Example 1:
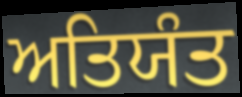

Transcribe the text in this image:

ਅਤਿਯੰਤ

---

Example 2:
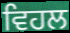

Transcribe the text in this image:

ਵਿਹਲ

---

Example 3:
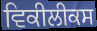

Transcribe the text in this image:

ਵਿਕੀਲੀਕਸ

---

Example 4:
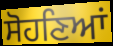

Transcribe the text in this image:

ਸੋਹਣਿਆਂ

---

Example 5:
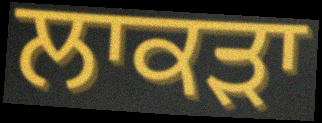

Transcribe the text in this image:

ਲਾਕੜਾ